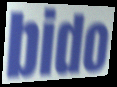
bido